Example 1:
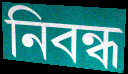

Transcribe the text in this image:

নিবন্ধ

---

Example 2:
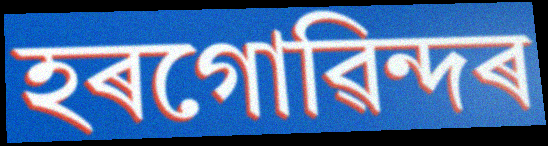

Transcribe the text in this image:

হৰগোৱিন্দৰ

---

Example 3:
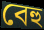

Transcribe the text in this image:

বেহু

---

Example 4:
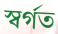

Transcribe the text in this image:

স্বৰ্গত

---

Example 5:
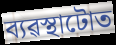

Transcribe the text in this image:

ব্যৱস্থাটোত